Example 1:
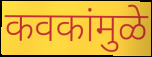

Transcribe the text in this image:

कवकांमुळे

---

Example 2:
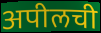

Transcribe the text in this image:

अपीलची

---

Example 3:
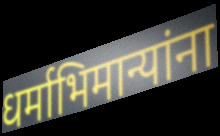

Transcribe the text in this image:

धर्माभिमान्यांना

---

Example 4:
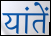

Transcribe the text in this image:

यांतें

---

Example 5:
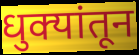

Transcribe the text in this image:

धुक्यांतून